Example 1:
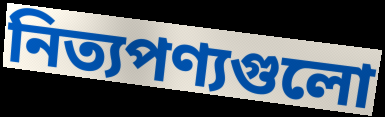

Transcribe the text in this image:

নিত্যপণ্যগুলো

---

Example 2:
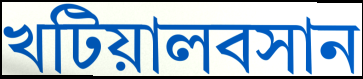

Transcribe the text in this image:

খটিয়ালবসান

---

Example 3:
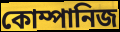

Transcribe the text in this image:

কোম্পানিজ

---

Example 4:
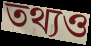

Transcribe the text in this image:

তথ্যও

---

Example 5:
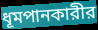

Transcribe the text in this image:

ধূমপানকারীর